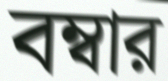
বম্বার